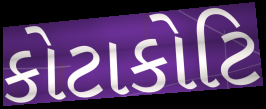
કોટાકોટિ